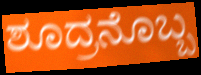
ಶೂದ್ರನೊಬ್ಬ